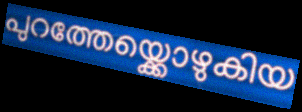
പുറത്തേയ്ക്കൊഴുകിയ